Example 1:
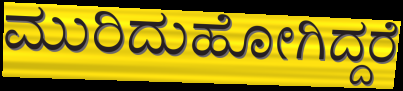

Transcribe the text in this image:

ಮುರಿದುಹೋಗಿದ್ದರೆ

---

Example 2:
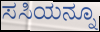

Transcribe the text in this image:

ಸಸಿಯನ್ನೂ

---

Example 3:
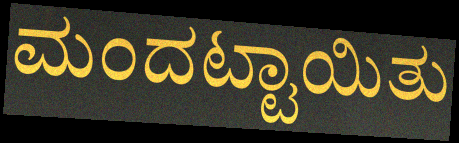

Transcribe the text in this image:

ಮಂದಟ್ಟಾಯಿತು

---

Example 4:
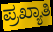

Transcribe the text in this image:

ಪ್ರಖ್ಯಾತಿ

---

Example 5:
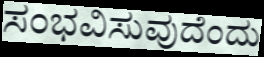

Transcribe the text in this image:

ಸಂಭವಿಸುವುದೆಂದು